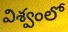
విశ్వంలో